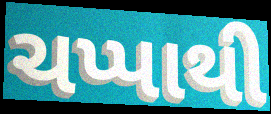
ચપ્પાથી